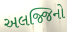
અલજ્જિનો